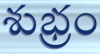
శుభ్రం